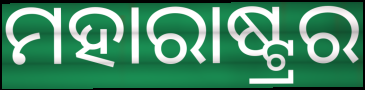
ମହାରାଷ୍ଟ୍ରର